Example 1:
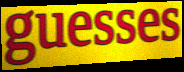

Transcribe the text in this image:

guesses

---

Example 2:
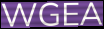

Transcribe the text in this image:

WGEA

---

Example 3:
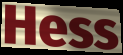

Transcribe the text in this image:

Hess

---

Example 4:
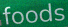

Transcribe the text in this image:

foods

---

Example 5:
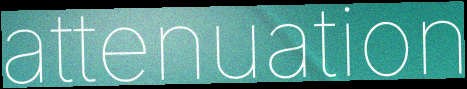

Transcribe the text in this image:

attenuation